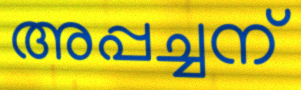
അപ്പച്ചന്